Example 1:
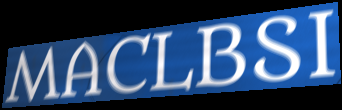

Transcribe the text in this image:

MACLBSI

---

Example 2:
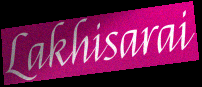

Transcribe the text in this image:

Lakhisarai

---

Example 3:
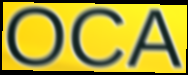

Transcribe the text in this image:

OCA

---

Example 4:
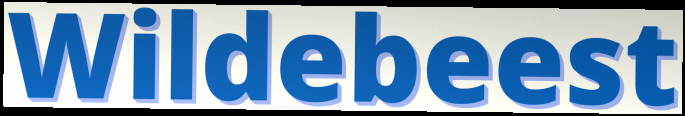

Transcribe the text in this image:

Wildebeest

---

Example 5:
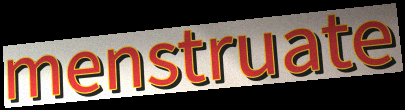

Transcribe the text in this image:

menstruate